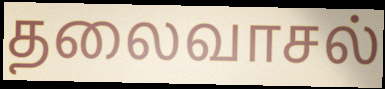
தலைவாசல்